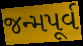
જન્મપૂર્વ